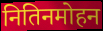
नितिनमोहन